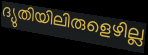
ദ്യുതിയിലിരുളെഴില്ല